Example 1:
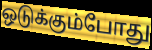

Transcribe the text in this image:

ஒடுக்கும்போது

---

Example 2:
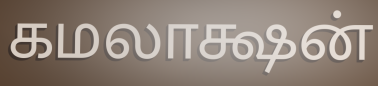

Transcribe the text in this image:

கமலாக்ஷன்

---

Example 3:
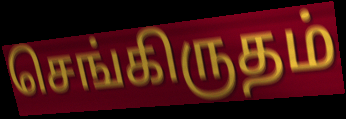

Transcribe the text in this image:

செங்கிருதம்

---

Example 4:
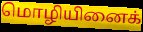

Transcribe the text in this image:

மொழியினைக்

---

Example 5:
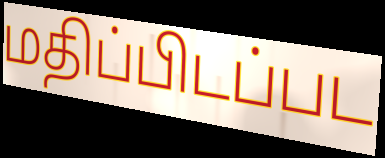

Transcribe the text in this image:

மதிப்பிடப்பட